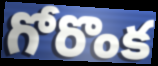
గోరొంక